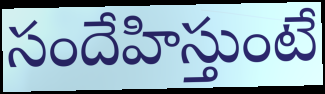
సందేహిస్తుంటే